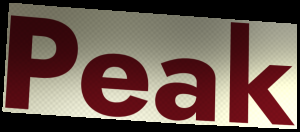
Peak